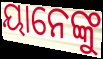
ୟାନେଙ୍କୁ